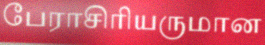
பேராசிரியருமான